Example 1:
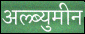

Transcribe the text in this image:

अल्ब्युमीन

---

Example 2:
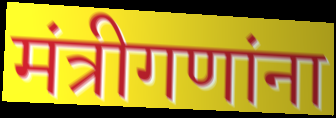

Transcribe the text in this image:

मंत्रीगणांना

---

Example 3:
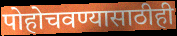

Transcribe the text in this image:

पोहोचवण्यासाठीही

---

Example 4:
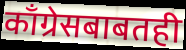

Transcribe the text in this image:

काँग्रेसबाबतही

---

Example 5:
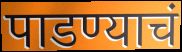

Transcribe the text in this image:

पाडण्याचं